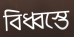
বিধ্বস্তে